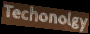
Techonolgy